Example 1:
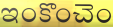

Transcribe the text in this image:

ఇంకొంచెం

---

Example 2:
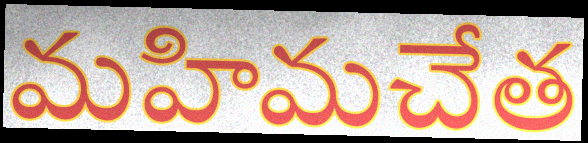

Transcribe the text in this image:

మహిమచేత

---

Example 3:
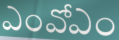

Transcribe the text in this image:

ఎంవోఎం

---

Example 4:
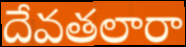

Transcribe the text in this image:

దేవతలారా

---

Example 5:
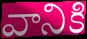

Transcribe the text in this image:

వానికి